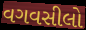
વગવસીલો